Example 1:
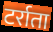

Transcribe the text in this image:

टर्राता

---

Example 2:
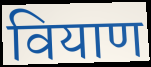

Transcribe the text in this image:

वियाण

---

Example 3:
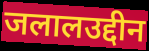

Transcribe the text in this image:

जलालउद्दीन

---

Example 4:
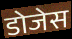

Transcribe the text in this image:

डोजेस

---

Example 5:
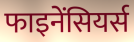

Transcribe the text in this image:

फाइनेंसियर्स